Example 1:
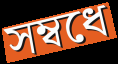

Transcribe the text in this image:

সম্বধে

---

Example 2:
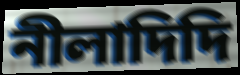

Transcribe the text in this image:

নীলাদিদি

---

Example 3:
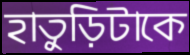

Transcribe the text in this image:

হাতুড়িটাকে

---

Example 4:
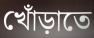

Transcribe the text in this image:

খোঁড়াতে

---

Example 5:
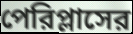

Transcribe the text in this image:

পেরিপ্লাসের